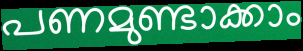
പണമുണ്ടാക്കാം